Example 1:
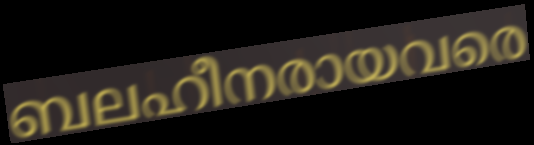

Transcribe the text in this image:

ബലഹീനരായവരെ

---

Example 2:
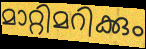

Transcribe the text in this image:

മാറ്റിമറിക്കും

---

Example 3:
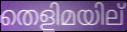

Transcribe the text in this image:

തെളിമയില്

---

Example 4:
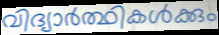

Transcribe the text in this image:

വിദ്യാർത്ഥികൾക്കും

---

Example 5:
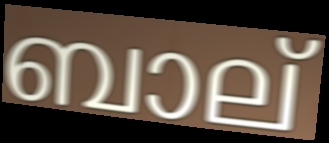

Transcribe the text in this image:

ബാല്